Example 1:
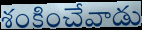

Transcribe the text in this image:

శంకించేవాడు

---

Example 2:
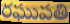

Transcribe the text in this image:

రఘుపతి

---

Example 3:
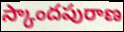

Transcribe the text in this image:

స్కాందపురాణ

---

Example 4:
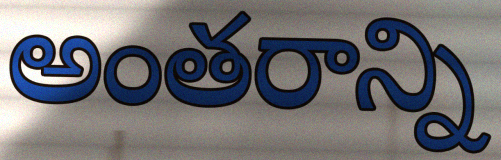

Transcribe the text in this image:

అంతరాన్ని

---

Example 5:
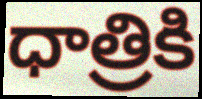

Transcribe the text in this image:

ధాత్రికి